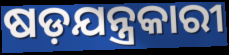
ଷଡ଼ଯନ୍ତ୍ରକାରୀ